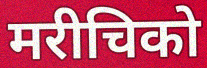
मरीचिको